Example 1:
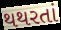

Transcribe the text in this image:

થથરતાં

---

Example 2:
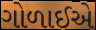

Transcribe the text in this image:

ગોળાઈએ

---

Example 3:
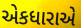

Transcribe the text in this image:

એકધારાએ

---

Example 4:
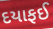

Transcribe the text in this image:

દયાફઈ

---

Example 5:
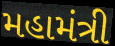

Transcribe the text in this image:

મહામંત્રી